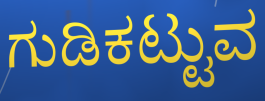
ಗುಡಿಕಟ್ಟುವ